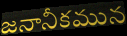
జనానీకమున